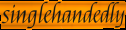
singlehandedly